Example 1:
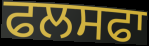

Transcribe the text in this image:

ਫਲਸਫਾ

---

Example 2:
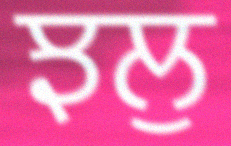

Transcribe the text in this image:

ਝਲੁ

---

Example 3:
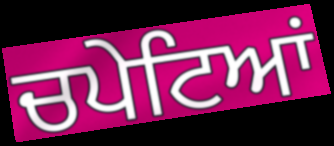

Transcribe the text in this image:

ਚਪੇਟਿਆਂ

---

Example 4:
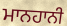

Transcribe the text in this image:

ਮਾਨਹਾਨੀ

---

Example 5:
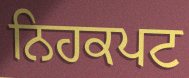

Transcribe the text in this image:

ਨਿਹਕਪਟ